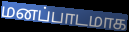
மனப்பாடமாக